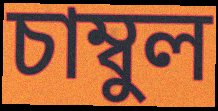
চাম্বুল